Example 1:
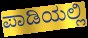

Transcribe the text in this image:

ಪಾಡಿಯಲ್ಲಿ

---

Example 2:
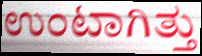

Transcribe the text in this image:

ಉಂಟಾಗಿತ್ತು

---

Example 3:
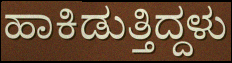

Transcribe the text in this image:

ಹಾಕಿಡುತ್ತಿದ್ದಳು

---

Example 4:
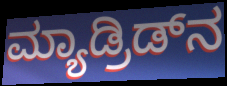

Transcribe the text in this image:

ಮ್ಯಾಡ್ರಿಡ್‌ನ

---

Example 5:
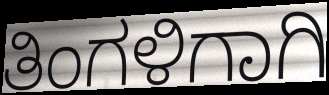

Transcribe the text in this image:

ತಿಂಗಳಿಗಾಗಿ